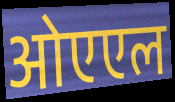
ओएएल